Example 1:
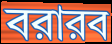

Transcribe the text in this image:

বরারব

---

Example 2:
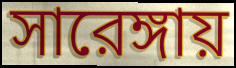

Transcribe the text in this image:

সারেঙ্গায়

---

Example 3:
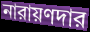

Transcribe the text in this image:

নারায়ণদার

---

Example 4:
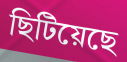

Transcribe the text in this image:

ছিটিয়েছে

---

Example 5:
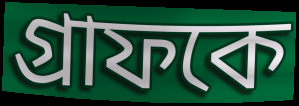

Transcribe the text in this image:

গ্রাফকে